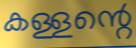
കള്ളന്റെ